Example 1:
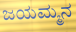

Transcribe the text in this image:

ಜಯಮ್ಮನ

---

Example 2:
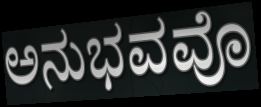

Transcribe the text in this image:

ಅನುಭವವೊ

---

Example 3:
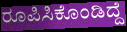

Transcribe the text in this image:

ರೂಪಿಸಿಕೊಂಡಿದ್ದೆ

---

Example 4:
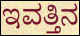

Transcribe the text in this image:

ಇವತ್ತಿನ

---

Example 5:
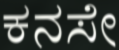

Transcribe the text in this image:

ಕನಸೇ